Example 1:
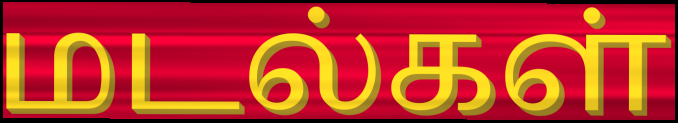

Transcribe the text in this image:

மடல்கள்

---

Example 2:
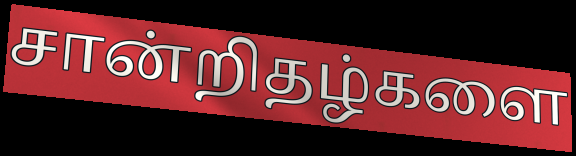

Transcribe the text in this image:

சான்றிதழ்களை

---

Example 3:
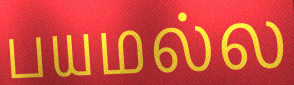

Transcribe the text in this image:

பயமல்ல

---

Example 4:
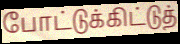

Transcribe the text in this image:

போட்டுக்கிட்டுத்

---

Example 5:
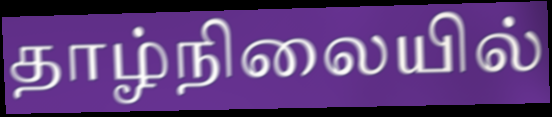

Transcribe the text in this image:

தாழ்நிலையில்